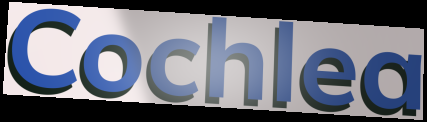
Cochlea